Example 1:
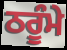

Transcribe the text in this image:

ਠਰੂੰਮੇ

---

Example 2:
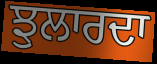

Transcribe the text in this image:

ਝੁਲਾਰਦਾ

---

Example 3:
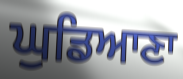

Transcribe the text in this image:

ਘੁਡਿਆਣਾ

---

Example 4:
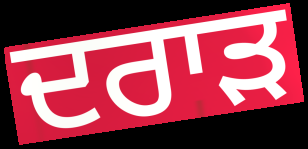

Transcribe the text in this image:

ਦਰਾੜ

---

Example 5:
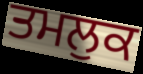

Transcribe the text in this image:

ਤਮਲੁਕ